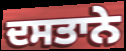
ਦਸਤਾਨੇ